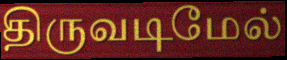
திருவடிமேல்